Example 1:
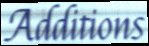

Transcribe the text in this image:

Additions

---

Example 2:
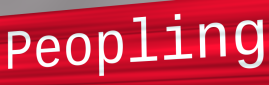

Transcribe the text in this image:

Peopling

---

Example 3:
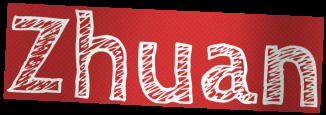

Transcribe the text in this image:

Zhuan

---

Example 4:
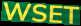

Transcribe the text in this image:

WSET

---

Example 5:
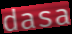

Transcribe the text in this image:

dasa